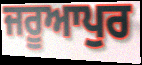
ਜਰੂਆਪੁਰ